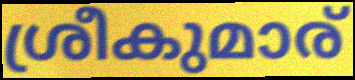
ശ്രീകുമാര്